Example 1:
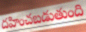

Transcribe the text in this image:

దహించబడుతుంది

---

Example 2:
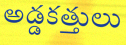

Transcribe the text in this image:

అడ్డకత్తులు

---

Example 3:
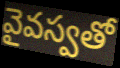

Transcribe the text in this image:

వైవస్వతో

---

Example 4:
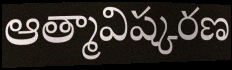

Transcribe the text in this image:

ఆత్మావిష్కరణ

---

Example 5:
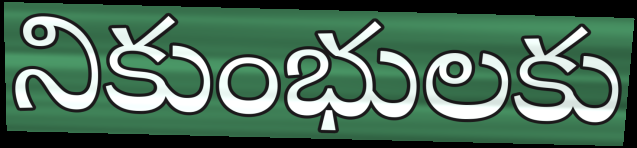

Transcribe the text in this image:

నికుంభులకు